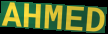
AHMED